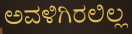
ಅವಳಿಗಿರಲಿಲ್ಲ